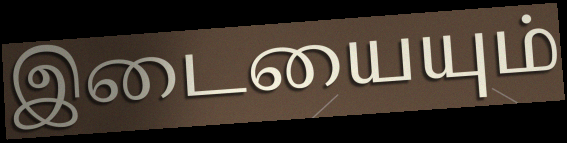
இடையையும்